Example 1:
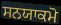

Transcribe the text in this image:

ਸਨਯਾਕਮੋ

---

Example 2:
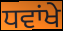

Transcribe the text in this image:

ਧਵਾਂਖੇ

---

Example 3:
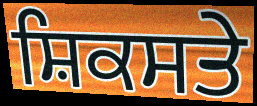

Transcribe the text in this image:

ਸ਼ਿਕਸਤੇ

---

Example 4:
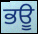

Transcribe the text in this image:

ਭਊ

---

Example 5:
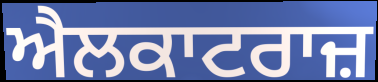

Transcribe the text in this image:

ਐਲਕਾਟਰਾਜ਼